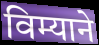
विम्याने